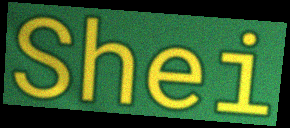
Shei